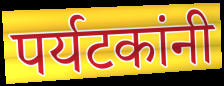
पर्यटकांनी